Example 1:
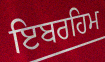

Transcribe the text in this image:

ਇਬਰਹਿਮ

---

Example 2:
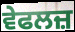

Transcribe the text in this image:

ਵੇਫਲਜ਼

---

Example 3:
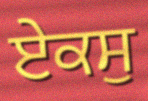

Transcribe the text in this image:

ਏਕਸੁ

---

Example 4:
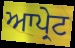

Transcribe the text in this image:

ਆਪ੍ਰੇਟ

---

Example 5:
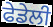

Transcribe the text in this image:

ਫੇਡੇਲੀ